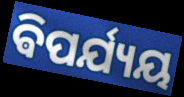
ଵିପର୍ଯ୍ୟୟ